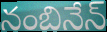
నంబినేన్